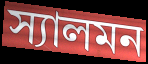
স্যালমন